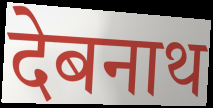
देबनाथ